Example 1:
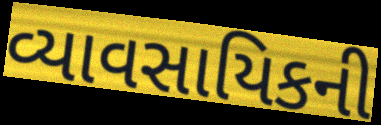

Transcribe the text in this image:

વ્યાવસાયિકની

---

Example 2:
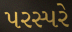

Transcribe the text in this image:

પરસ્પરે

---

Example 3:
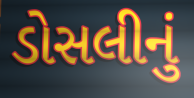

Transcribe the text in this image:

ડોસલીનું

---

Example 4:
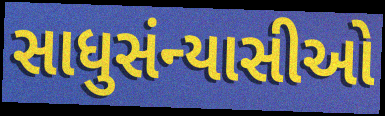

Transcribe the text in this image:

સાધુસંન્યાસીઓ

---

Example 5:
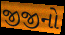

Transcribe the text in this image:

જીજીનો